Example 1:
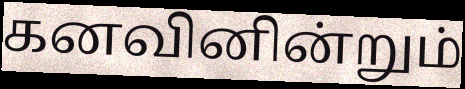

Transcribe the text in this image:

கனவினின்றும்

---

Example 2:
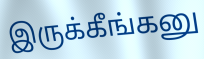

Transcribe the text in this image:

இருக்கீங்கனு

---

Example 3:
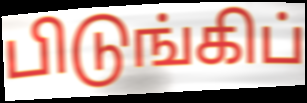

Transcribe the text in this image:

பிடுங்கிப்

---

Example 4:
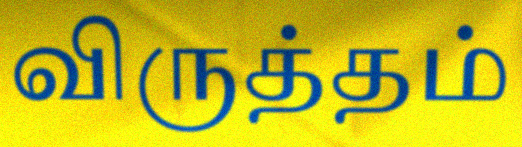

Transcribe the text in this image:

விருத்தம்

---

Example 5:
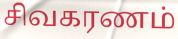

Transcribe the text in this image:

சிவகரணம்